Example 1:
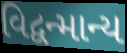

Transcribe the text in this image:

વિદ્વન્માન્ય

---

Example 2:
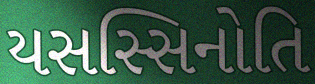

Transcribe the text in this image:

યસસ્સિનોતિ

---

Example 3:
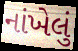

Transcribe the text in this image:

નાંખેલું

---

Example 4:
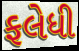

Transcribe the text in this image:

ફલેધી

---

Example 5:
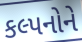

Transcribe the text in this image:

કલ્પનોને